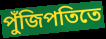
পুঁজিপতিতে